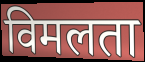
विमलता